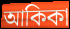
আকিকা